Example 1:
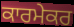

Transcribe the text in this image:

ਕਾਰਮੇਕਰ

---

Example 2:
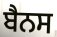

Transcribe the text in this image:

ਬੈਨਸ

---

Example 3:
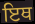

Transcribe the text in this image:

ਇਥ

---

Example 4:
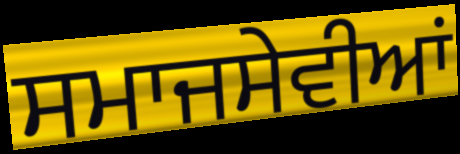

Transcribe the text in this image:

ਸਮਾਜਸੇਵੀਆਂ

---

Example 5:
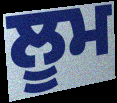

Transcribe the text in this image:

ਲੂਮ